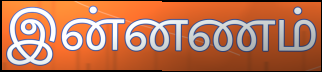
இன்னணம்